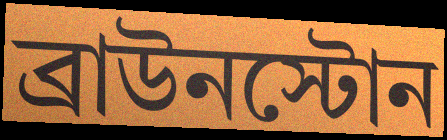
ব্রাউনস্টোন